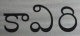
కావిరి